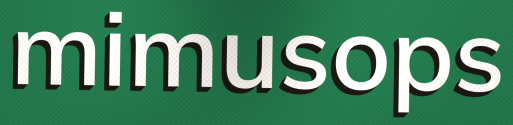
mimusops